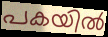
പകയിൽ